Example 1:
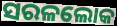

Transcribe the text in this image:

ସରଳଲୋକ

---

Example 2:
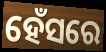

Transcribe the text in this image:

ହେଁସରେ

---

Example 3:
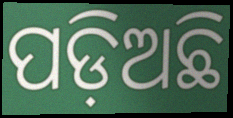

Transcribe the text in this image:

ପଡ଼ିଅଛି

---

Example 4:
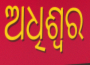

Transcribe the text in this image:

ଅଧିଶ୍ବର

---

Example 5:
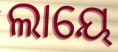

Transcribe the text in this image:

ଲାୟେ